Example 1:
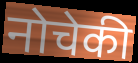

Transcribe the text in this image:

नोचेकी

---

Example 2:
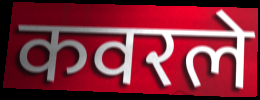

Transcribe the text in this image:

कवरले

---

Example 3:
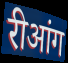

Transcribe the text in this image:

रीआंग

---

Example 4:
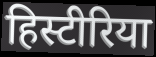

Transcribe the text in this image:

हिस्टीरिया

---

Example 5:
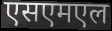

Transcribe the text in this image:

एसएमएल